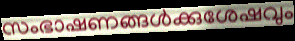
സംഭാഷണങ്ങൾക്കുശേഷവും